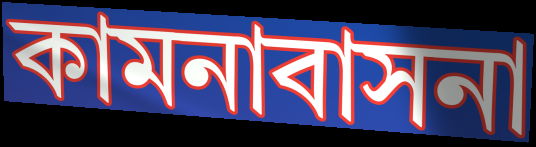
কামনাবাসনা